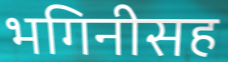
भगिनीसह